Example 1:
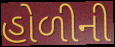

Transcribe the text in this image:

હોળીની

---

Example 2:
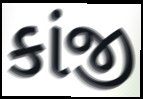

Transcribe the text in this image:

કાંજી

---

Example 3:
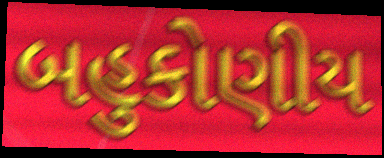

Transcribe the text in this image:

બહુકોણીય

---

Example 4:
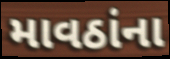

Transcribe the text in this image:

માવઠાંના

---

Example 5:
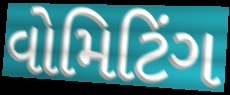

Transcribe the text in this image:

વોમિટિંગ